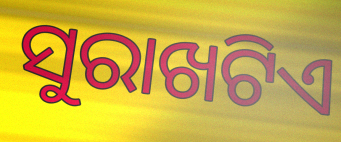
ସୁରାଖଟିଏ